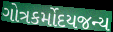
ગોત્રકર્મોદયજન્ય